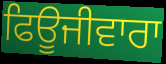
ਫਿਊਜੀਵਾਰਾ